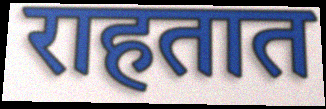
राहतात